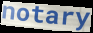
notary